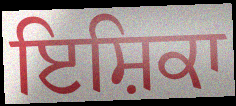
ਇਸ਼ਿਕਾ